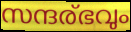
സന്ദര്ഭവും